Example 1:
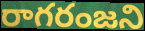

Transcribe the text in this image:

రాగరంజని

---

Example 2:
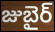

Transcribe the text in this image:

జుబైర్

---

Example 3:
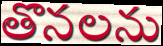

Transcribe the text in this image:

తొనలను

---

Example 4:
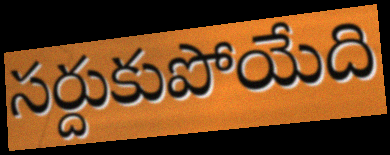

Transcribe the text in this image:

సర్దుకుపోయేది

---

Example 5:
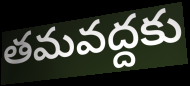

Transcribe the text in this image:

తమవద్దకు